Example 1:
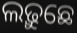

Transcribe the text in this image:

ଲଢ଼ୁଛେ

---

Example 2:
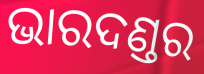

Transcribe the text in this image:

ଭାରଦଣ୍ଡର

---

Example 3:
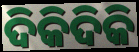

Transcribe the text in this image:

ଦିକିଦିକି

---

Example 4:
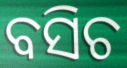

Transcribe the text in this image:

ବସିଚ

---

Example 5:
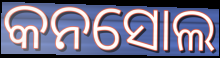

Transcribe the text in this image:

କନସୋଲ